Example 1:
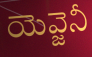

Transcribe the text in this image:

యెవ్జెనీ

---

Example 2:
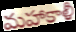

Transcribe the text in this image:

మహాకాళీ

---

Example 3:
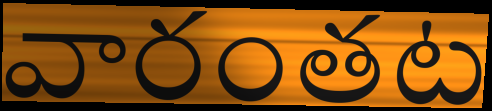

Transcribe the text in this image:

వారంతట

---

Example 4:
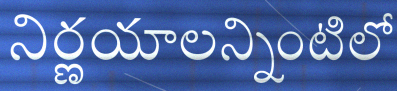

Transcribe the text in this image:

నిర్ణయాలన్నింటిలో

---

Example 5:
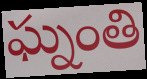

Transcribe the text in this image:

ఘ్నంతి